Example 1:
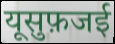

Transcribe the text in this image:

यूसुफ़जई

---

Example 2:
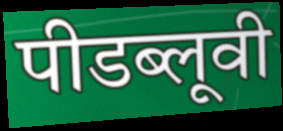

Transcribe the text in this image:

पीडब्लूवी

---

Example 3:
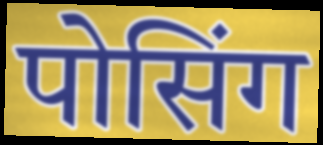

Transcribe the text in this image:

पोसिंग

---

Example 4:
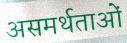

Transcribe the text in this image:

असमर्थताओं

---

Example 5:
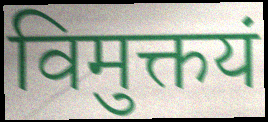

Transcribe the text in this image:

विमुक्तयं